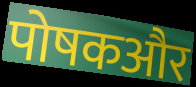
पोषकऔर